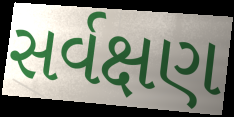
સર્વક્ષણ